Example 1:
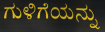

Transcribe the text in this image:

ಗುಳಿಗೆಯನ್ನು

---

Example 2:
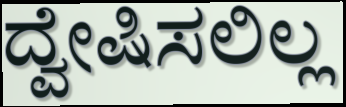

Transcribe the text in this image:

ದ್ವೇಷಿಸಲಿಲ್ಲ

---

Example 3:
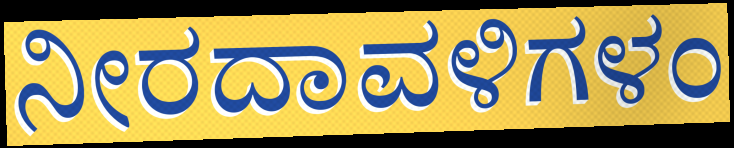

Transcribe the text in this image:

ನೀರದಾವಳಿಗಳಂ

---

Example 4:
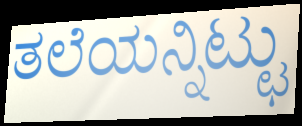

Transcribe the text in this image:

ತಲೆಯನ್ನಿಟ್ಟು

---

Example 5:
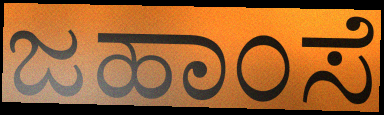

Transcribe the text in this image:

ಜಹಾಂಸೆ